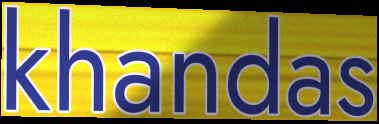
khandas